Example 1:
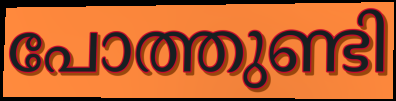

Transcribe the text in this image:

പോത്തുണ്ടി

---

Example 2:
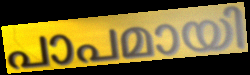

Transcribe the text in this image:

പാപമായി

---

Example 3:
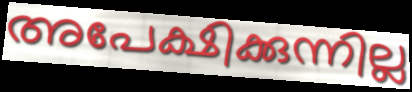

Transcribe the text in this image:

അപേക്ഷിക്കുന്നില്ല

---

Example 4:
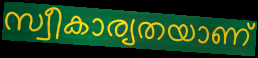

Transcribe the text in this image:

സ്വീകാര്യതയാണ്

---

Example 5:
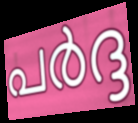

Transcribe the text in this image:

പർദ്ദ